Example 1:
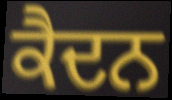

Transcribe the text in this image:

ਕੈਦਨ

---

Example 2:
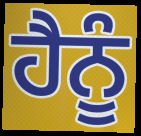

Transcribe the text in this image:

ਹੈਨੂੰ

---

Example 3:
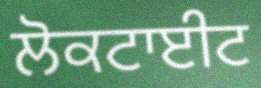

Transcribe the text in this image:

ਲੋਕਟਾਈਟ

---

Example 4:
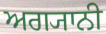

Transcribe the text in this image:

ਅਗ੍ਯਾਨੀ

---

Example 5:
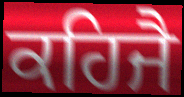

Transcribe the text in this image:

ਕਹਿਜੈ